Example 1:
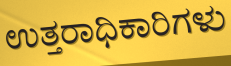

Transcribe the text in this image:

ಉತ್ತರಾಧಿಕಾರಿಗಳು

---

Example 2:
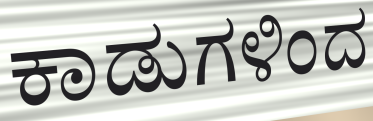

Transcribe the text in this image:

ಕಾಡುಗಳಿಂದ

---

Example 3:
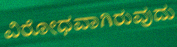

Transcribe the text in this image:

ವಿರೋಧವಾಗಿರುವುದು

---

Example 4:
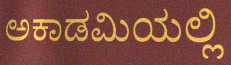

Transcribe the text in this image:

ಅಕಾಡಮಿಯಲ್ಲಿ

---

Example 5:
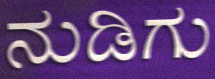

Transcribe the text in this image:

ನುಡಿಗು